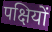
पक्षियों